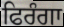
ਫਿਰੰਗਾ